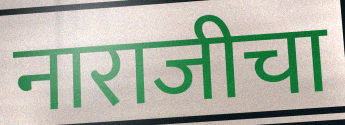
नाराजीचा